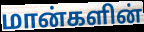
மான்களின்